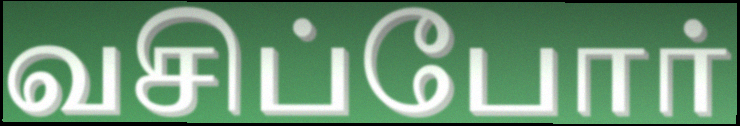
வசிப்போர்